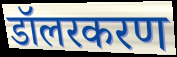
डॉलरकरण